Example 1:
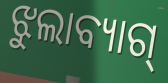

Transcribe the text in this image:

ଝୁଲାବ୍ୟାଗ୍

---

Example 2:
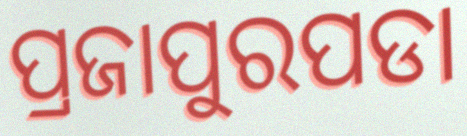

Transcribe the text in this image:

ପ୍ରଜାପୁରପଡା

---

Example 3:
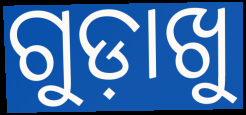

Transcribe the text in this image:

ଗୁଡ଼ାଖୁ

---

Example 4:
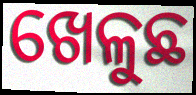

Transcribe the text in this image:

ଖେଳୁଛ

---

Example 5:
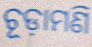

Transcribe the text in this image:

ଚୂଡ଼ାମଣି